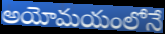
అయోమయంలోనే